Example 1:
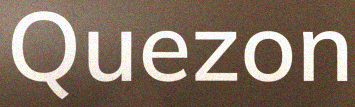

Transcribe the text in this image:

Quezon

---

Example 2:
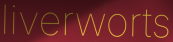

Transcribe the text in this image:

liverworts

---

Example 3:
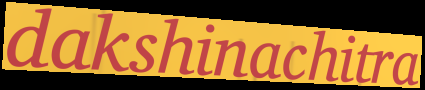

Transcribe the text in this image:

dakshinachitra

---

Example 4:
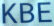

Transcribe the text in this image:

KBE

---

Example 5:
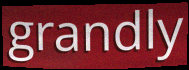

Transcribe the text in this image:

grandly